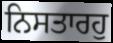
ਨਿਸਤਾਰਹੁ